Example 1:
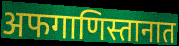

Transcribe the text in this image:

अफगाणिस्तानात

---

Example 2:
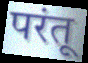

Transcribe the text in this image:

परंतू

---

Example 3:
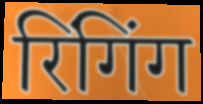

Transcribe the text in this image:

रिंगिंग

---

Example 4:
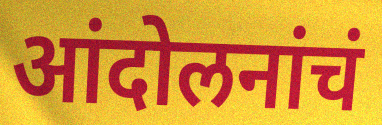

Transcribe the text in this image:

आंदोलनांचं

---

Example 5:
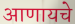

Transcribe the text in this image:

आणायचे